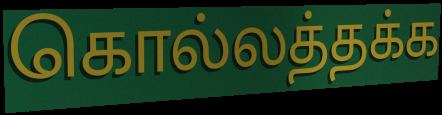
கொல்லத்தக்க